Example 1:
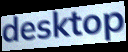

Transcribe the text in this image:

desktop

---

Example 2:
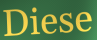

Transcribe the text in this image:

Diese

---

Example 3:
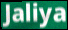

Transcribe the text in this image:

Jaliya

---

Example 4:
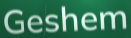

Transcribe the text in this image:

Geshem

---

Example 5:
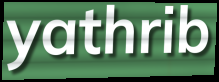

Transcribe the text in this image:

yathrib